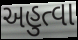
અહુત્વા